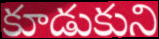
కూడుకుని